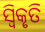
ସ୍ୱିକୃତି